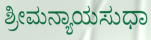
ಶ್ರೀಮನ್ಯಾಯಸುಧಾ